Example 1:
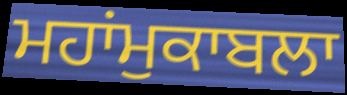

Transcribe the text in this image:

ਮਹਾਂਮੁਕਾਬਲਾ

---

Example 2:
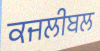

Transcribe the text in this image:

ਕਜਲੀਬਲ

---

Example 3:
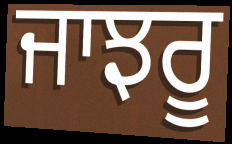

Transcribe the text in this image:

ਜਾਝਰੂ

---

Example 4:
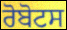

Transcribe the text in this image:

ਰੋਬੋਟਸ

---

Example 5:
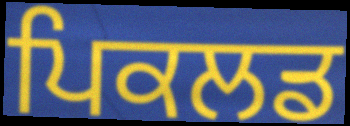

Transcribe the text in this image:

ਪਿਕਲਡ